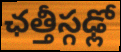
ఛత్తీస్గఢ్లో